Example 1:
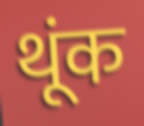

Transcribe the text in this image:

थूंक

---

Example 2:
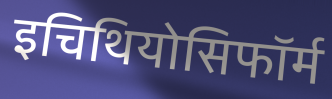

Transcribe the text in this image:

इचिथियोसिफॉर्म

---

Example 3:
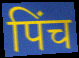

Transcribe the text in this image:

पिंच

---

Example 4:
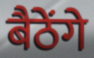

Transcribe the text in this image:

बैठेंगे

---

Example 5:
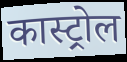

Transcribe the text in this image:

कास्ट्रोल